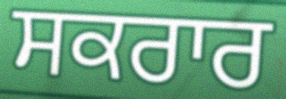
ਸਕਰਾਰ